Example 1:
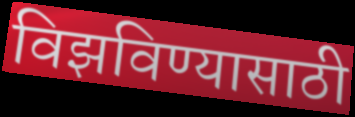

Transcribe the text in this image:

विझविण्यासाठी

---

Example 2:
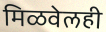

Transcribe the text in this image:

मिळवेलही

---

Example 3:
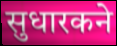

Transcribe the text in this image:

सुधारकने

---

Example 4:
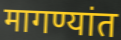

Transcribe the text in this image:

मागण्यांत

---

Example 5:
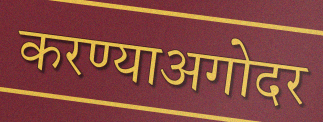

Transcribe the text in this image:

करण्याअगोदर